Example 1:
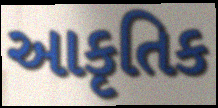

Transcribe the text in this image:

આકૃતિક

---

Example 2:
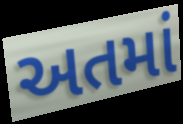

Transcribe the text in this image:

અતમાં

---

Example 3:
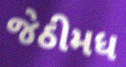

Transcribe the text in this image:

જેઠીમધ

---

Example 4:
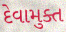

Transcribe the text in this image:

દેવામુક્ત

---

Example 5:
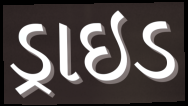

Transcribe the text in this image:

ડ્રાઇડ